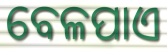
ବେଳପାଏ